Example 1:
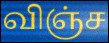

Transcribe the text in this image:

விஞ்ச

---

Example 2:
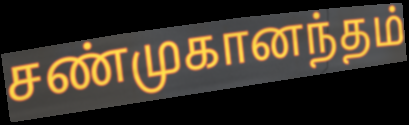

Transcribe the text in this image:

சண்முகானந்தம்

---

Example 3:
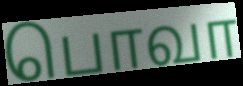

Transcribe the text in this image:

பொவா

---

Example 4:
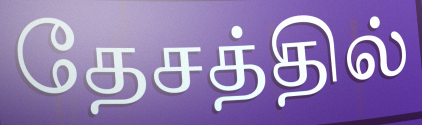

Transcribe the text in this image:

தேசத்தில்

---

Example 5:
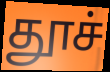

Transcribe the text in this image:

தூச்